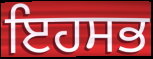
ਇਹਸਭ